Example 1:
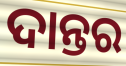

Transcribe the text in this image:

ଦାନ୍ତର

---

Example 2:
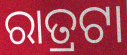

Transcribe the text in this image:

ରାତ୍ରଟା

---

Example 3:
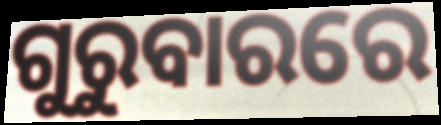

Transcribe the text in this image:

ଗୁରୁବାରରେ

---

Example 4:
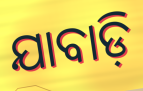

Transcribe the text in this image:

ଯାବାଡ଼ି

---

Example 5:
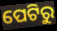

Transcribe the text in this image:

ପେଟିରୁ